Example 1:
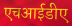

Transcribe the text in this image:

एचआईडीए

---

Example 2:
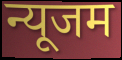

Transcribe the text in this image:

न्यूजम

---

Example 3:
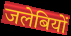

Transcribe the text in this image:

जलेबियों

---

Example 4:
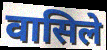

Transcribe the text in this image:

वासिले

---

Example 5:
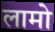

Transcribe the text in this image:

लामो